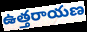
ఉత్తరాయణ